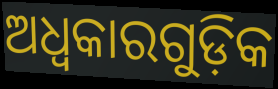
ଅଧ୍ବକାରଗୁଡ଼ିକ